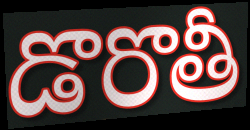
డొరొతీ